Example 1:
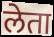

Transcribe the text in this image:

लेता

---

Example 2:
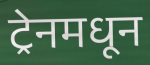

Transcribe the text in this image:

ट्रेनमधून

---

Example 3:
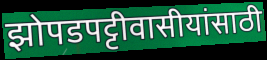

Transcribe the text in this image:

झोपडपट्टीवासीयांसाठी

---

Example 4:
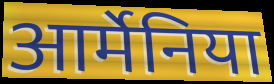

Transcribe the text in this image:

आर्मेनिया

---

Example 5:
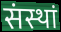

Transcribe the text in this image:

संस्थां